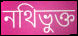
নথিভুক্ত